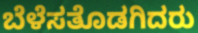
ಬೆಳೆಸತೊಡಗಿದರು